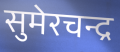
सुमेरचन्द्र